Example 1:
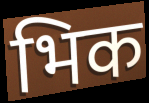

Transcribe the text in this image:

भिक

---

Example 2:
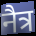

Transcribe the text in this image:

नैत्र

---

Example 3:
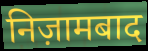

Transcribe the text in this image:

निज़ामबाद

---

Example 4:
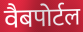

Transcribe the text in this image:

वैबपोर्टल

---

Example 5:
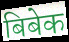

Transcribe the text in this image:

बिबेक